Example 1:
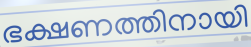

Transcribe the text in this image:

ഭക്ഷണത്തിനായി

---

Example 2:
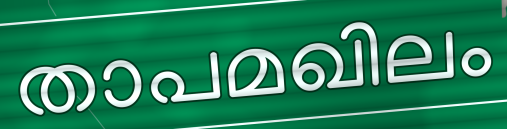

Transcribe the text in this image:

താപമഖിലം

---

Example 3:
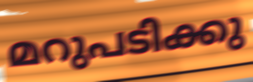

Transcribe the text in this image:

മറുപടിക്കു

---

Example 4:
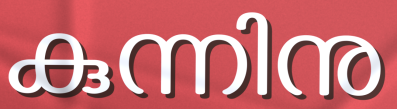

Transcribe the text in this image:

കുന്നിനു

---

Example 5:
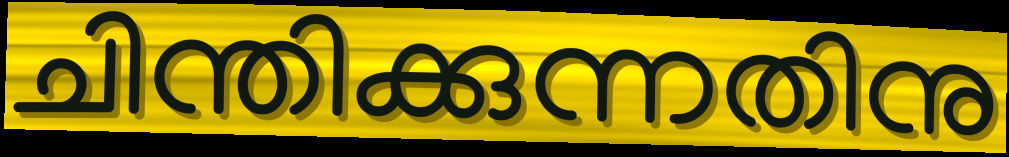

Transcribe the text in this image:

ചിന്തിക്കുന്നതിനു